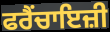
ਫਰੈਂਚਾਇਜ਼ੀ